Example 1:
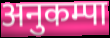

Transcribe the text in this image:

अनुकम्‍पा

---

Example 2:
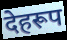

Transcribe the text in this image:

देहरूप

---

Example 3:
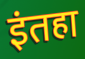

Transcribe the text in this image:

इंतहा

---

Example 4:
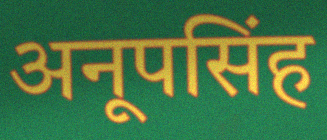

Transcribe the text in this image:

अनूपसिंह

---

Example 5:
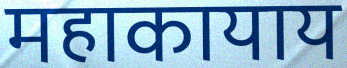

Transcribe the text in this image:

महाकायाय